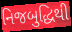
નિજબુદ્ધિથી